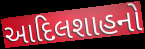
આદિલશાહનો